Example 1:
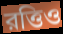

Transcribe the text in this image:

রত্তিও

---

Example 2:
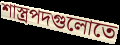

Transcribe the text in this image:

শাস্ত্রপদগুলোতে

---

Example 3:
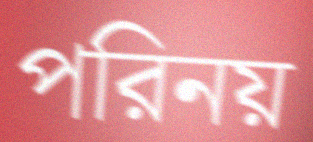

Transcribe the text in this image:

পরিনয়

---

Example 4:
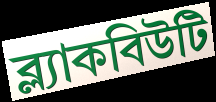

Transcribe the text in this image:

ব্ল্যাকবিউটি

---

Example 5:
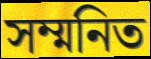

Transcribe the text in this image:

সম্মনিত